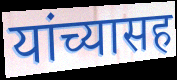
यांच्यासह